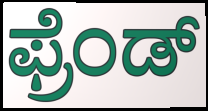
ಫ್ರೆಂಡ್